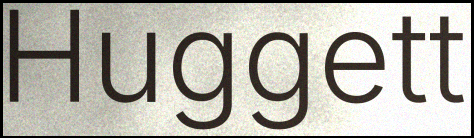
Huggett